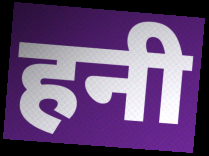
हनी